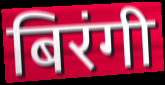
बिरंगी